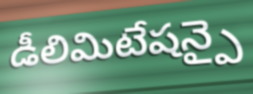
డీలిమిటేషన్పై